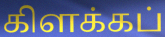
கிளக்கப்